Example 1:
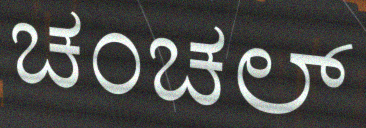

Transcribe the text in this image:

ಚಂಚಲ್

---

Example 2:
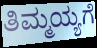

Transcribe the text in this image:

ತಿಮ್ಮಯ್ಯಗೆ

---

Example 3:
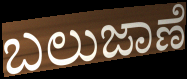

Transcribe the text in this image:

ಬಲುಜಾಣೆ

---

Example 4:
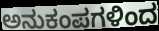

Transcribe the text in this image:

ಅನುಕಂಪಗಳಿಂದ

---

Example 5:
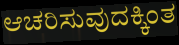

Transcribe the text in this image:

ಆಚರಿಸುವುದಕ್ಕಿಂತ